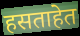
हसताहेत